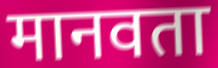
मानवता